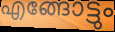
എങ്ങോട്ടും